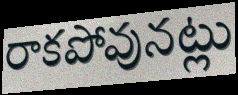
రాకపోవునట్లు